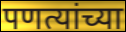
पणत्यांच्या